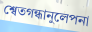
শ্বেতগন্ধানুলেপনা